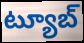
ట్యూబ్